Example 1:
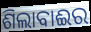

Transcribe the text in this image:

ଶିଲାବାଈର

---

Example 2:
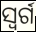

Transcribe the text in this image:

ସ୍ବର୍ଗ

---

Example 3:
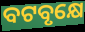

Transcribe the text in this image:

ବଟବୃକ୍ଷେ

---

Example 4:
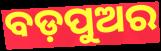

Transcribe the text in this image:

ବଡ଼ପୁଅର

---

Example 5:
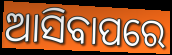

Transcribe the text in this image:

ଆସିବାପରେ